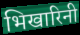
भिखारिनी